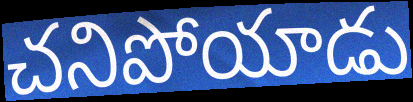
చనిపోయాడు